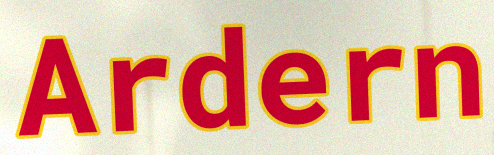
Ardern